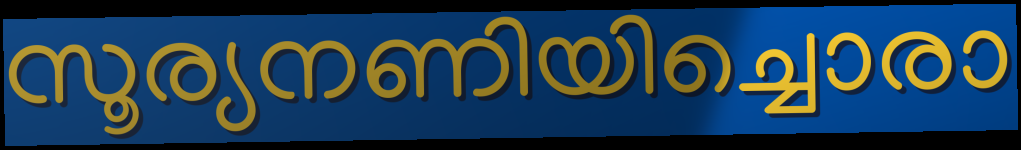
സൂര്യനണിയിച്ചൊരാ